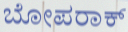
ಬೋಪರಾಕ್